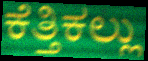
ಕೆತ್ತಿಕಲ್ಲು